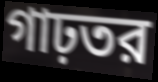
গাঢ়তর